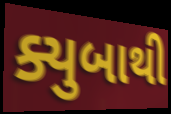
ક્યુબાથી